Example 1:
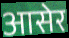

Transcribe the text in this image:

आसेर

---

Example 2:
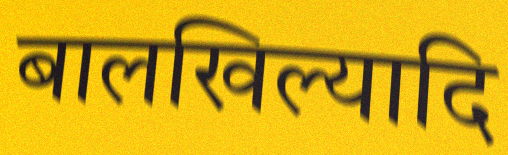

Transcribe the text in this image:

बालखिल्यादि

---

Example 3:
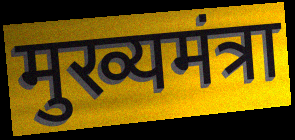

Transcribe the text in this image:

मुख्यमंत्रा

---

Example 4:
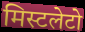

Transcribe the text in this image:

मिस्टलेटो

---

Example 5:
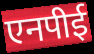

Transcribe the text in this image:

एनपीई